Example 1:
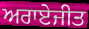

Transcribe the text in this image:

ਅਰਾਏਜੀਤ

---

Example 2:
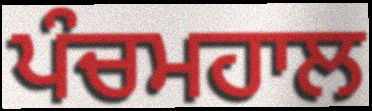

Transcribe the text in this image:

ਪੰਚਮਹਾਲ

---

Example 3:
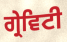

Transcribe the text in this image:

ਗ੍ਰੇਵਿਟੀ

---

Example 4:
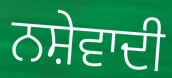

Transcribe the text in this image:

ਨਸ਼ੇਵਾਦੀ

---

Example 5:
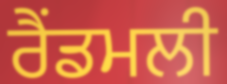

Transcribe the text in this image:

ਰੈਂਡਮਲੀ